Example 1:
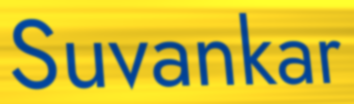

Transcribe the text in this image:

Suvankar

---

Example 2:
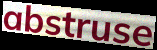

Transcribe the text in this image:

abstruse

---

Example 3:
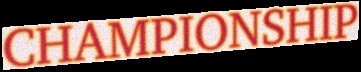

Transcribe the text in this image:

CHAMPIONSHIP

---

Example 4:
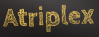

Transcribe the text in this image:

Atriplex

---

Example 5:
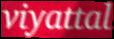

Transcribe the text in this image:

viyattal